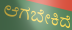
ಆಗಬೇಕಿದೆ